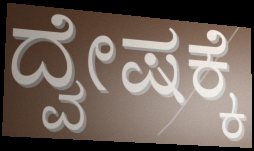
ದ್ವೇಷಕ್ಕೆ